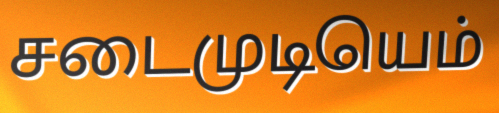
சடைமுடியெம்